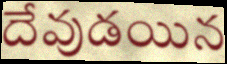
దేవుడయిన